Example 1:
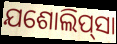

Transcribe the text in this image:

ଯଶୋଲିପ୍‌ସା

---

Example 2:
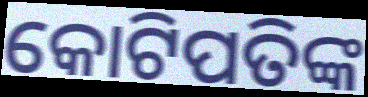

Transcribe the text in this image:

କୋଟିପତିଙ୍କ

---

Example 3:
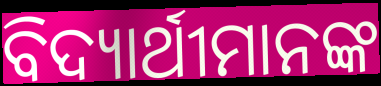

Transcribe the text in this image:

ବିଦ୍ୟାର୍ଥୀମାନଙ୍କ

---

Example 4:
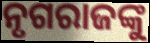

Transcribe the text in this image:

ନୃଗରାଜଙ୍କୁ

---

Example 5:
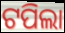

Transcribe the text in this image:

ଟପିଲା